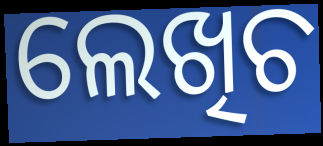
ଲେଖିଚ